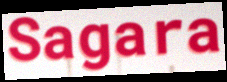
Sagara